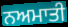
ਨਅਮਾਤੀ